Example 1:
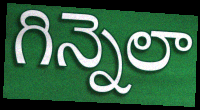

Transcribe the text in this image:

గిన్నెలా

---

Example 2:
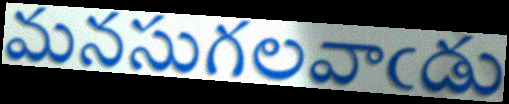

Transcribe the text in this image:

మనసుగలవాఁడు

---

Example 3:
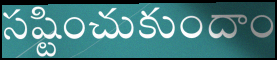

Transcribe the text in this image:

సష్టించుకుందాం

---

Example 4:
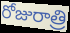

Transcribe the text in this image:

రోజురాత్రి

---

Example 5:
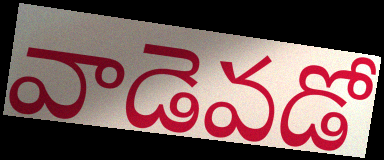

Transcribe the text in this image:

వాడెవడో